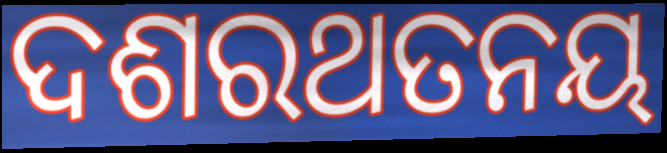
ଦଶରଥତନୟ